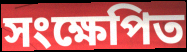
সংক্ষেপিত